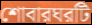
শোবারঘরটি